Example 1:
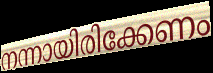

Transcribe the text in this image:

നന്നായിരിക്കേണം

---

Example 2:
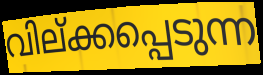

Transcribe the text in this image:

വില്ക്കപ്പെടുന്ന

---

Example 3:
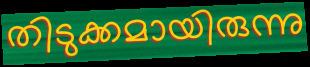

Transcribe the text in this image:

തിടുക്കമായിരുന്നു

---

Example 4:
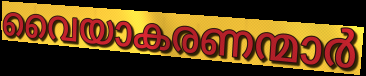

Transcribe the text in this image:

വൈയാകരണന്മാർ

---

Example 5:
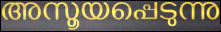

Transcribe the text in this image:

അസൂയപ്പെടുന്നു